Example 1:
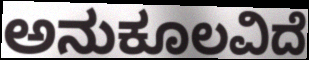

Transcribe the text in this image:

ಅನುಕೂಲವಿದೆ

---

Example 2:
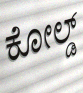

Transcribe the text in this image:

ಕೋಲ್ಡ್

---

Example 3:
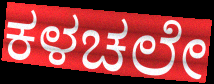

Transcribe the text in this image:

ಕಳಚಲೇ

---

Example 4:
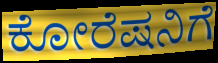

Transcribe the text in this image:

ಕೋರೆಷನಿಗೆ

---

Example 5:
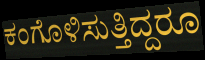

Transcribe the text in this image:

ಕಂಗೊಳಿಸುತ್ತಿದ್ದರೂ